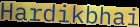
Hardikbhai